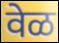
वेळ